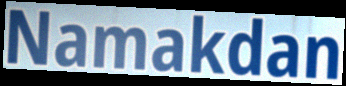
Namakdan